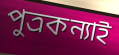
পুত্রকন্যাই